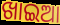
ଖାଇଆ